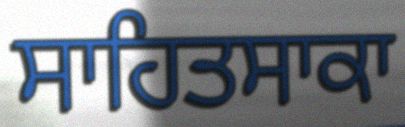
ਸਾਹਿਤਸਾਕਾ